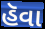
હૅવા